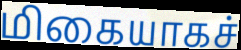
மிகையாகச்